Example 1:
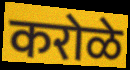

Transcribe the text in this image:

करोळे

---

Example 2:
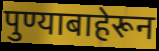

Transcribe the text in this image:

पुण्याबाहेरून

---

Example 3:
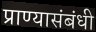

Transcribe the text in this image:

प्राण्यासंबंधी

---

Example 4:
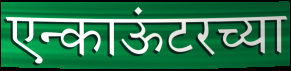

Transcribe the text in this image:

एन्काऊंटरच्या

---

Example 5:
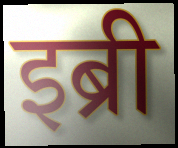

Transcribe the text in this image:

इब्री